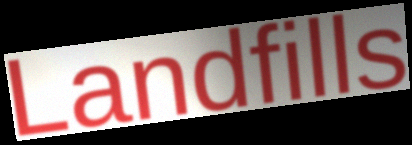
Landfills